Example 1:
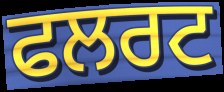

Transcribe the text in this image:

ਫਲਰਟ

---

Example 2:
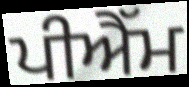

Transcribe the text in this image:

ਪੀਐੱਮ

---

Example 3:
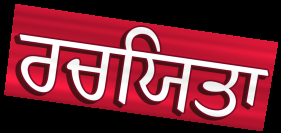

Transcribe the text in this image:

ਰਚਯਿਤਾ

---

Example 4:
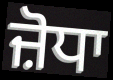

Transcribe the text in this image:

ਜ਼ੋਧਾ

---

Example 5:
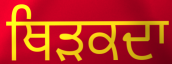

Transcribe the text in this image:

ਥਿੜਕਦਾ